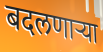
बदलणार्‍या